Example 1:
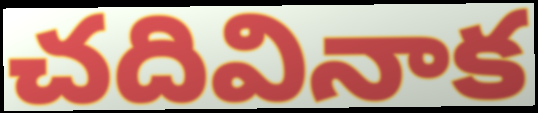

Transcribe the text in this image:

చదివినాక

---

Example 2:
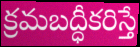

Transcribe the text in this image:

క్రమబద్ధీకరిస్తే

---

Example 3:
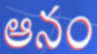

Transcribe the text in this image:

ఆనం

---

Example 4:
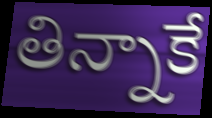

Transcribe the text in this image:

తిన్నాకే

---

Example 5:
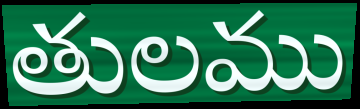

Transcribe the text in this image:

తులము